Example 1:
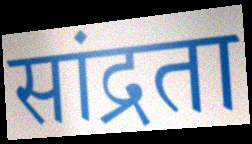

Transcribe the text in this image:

सांद्रता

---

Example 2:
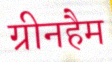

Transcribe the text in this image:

ग्रीनहैम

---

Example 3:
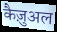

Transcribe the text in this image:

कैज़ुअल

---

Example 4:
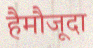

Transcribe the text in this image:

हैमौजूदा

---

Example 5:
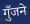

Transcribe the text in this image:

गुँजने